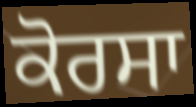
ਕੋਰਸਾ